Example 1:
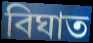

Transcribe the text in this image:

বিঘাত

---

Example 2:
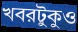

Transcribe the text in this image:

খবরটুকুও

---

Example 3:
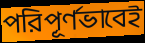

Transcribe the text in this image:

পরিপূর্ণভাবেই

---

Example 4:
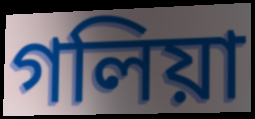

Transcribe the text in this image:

গলিয়া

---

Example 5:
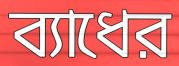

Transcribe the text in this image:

ব্যাধের